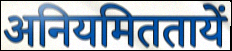
अनियमिततायें